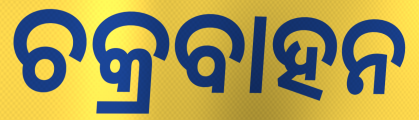
ଚକ୍ରବାହନ